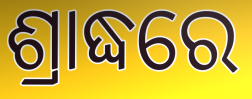
ଶ୍ରାଦ୍ଧରେ